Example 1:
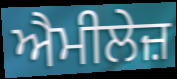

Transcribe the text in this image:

ਐਮੀਲੇਜ਼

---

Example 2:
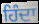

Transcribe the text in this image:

ਹਿੰਦਾ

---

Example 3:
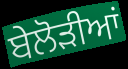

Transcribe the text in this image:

ਬੇਲੋੜੀਆਂ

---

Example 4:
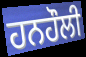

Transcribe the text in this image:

ਹਨਹੌਲੀ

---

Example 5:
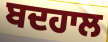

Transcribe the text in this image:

ਬਦਹਾਲ